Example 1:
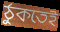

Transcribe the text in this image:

ঠুকতেই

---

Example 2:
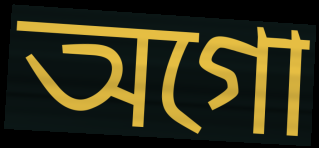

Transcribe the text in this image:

অগো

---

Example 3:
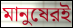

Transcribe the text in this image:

মানুষেরই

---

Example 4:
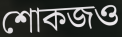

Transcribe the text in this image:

শোকজও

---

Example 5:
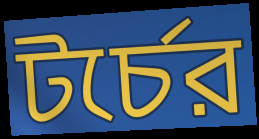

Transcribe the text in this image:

টর্চের